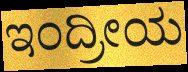
ಇಂದ್ರೀಯ